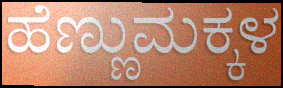
ಹೆಣ್ಣುಮಕ್ಕಳ